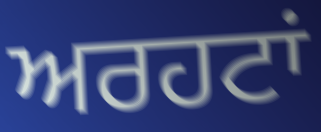
ਅਰਹਟਾਂ